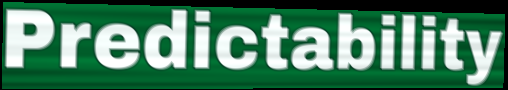
Predictability